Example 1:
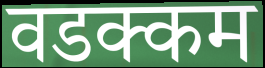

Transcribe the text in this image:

वडक्कम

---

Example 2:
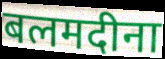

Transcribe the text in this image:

बलमदीना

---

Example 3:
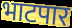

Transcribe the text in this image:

भाटपार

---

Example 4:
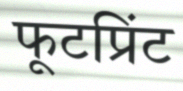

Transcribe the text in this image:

फूटप्रिंट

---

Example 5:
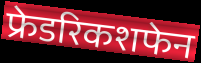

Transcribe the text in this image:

फ्रेडरिकशफेन